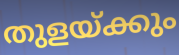
തുളയ്ക്കും